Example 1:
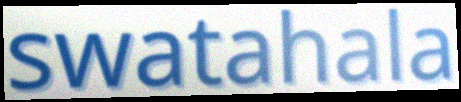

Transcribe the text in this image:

swatahala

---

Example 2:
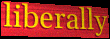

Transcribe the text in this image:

liberally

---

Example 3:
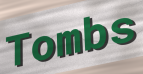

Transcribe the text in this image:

Tombs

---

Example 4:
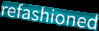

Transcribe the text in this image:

refashioned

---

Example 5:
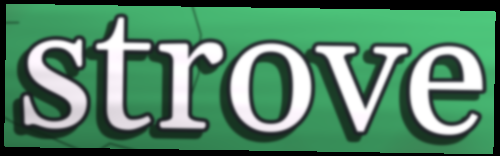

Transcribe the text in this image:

strove